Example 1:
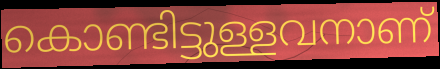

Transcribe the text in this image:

കൊണ്ടിട്ടുള്ളവനാണ്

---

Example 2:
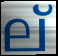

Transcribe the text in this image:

ല്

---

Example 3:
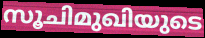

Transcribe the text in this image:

സൂചിമുഖിയുടെ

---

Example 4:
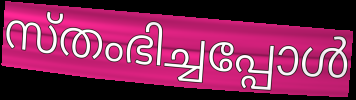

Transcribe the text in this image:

സ്തംഭിച്ചപ്പോൾ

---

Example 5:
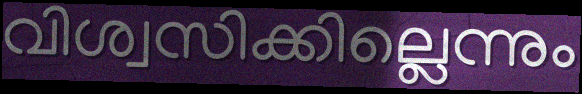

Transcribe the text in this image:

വിശ്വസിക്കില്ലെന്നും